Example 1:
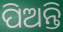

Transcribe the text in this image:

ପିଅନ୍ତି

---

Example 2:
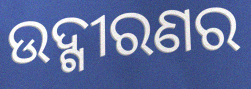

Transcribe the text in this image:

ଉଦ୍ଗୀରଣର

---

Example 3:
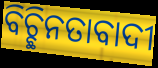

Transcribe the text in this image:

ବିଚ୍ଛିନତାବାଦୀ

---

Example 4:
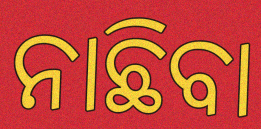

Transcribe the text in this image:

ନାଛିବା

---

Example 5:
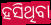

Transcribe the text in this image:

ହସିଥିବା